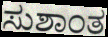
ಸುಶಾಂತ